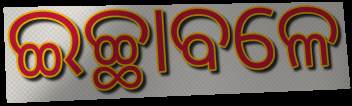
ଇଚ୍ଛାବଳେ